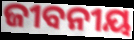
ଜୀବନୀୟ